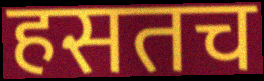
हसतच